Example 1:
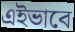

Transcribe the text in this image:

এইভাবে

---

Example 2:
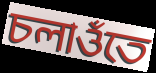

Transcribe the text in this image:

চলাওঁতে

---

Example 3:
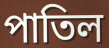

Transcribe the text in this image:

পাতিল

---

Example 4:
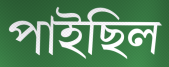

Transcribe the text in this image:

পাইছিল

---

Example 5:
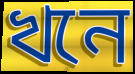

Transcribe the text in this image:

খনে